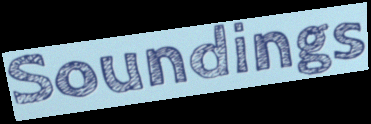
Soundings